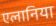
एलानिया